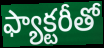
ఫ్యాక్టరీతో